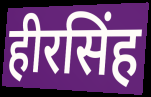
हीरसिंह